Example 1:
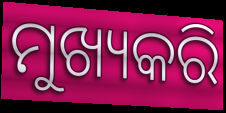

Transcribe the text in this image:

ମୁଖ୍ୟକରି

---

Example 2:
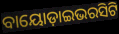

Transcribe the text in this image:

ବାୟୋଡ଼ାଇଭରସିଟି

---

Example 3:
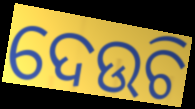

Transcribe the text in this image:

ଦେଉଚି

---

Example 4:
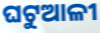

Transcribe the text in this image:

ଘଟୁଆଳୀ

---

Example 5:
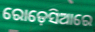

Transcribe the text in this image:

ରୋଡ଼େସିଆରେ